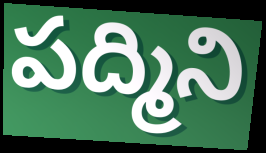
పద్మిని